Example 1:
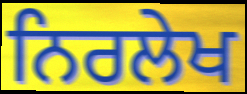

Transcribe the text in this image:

ਨਿਰਲੇਖ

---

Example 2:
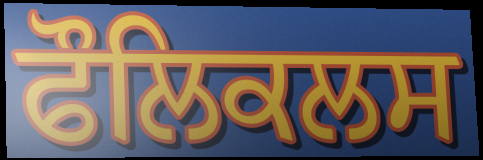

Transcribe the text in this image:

ਫੌਲਿਕਲਸ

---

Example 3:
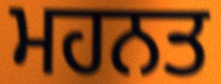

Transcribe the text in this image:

ਮਹਨਤ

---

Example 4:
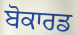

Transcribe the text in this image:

ਬੋਕਾਰਡ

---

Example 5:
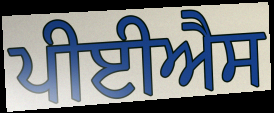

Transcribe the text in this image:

ਪੀਈਐਸ